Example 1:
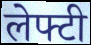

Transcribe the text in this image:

लेफ्टी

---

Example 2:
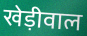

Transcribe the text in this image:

खेड़ीवाल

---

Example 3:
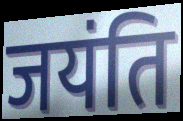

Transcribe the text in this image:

जयंति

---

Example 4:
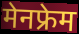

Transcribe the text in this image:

मेनफ्रेम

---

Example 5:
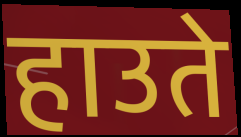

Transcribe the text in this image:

हाउते